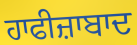
ਹਾਫੀਜ਼ਾਬਾਦ